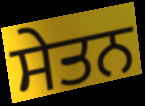
ਸੇਤਨ